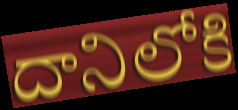
దానిలోకి